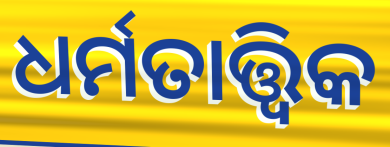
ଧର୍ମତାତ୍ତ୍ଵିକ